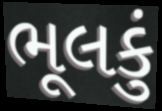
ભૂલકું